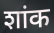
शांक